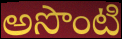
అసొంటి